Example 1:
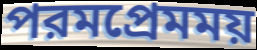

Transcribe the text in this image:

পরমপ্রেমময়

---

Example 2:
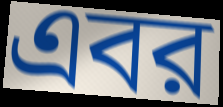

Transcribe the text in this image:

এবর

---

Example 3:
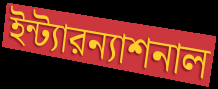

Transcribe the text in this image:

ইন্ট্যারন্যাশনাল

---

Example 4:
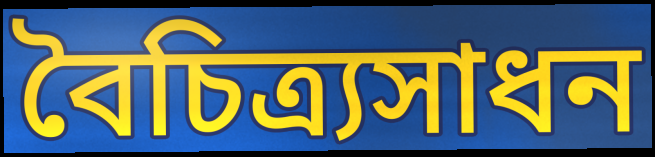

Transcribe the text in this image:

বৈচিত্র্যসাধন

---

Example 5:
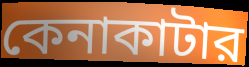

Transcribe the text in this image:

কেনাকাটার